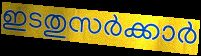
ഇടതുസർക്കാർ